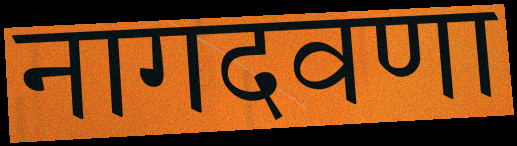
नागदवणा